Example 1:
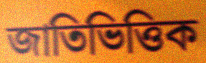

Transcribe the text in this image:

জাতিভিত্তিক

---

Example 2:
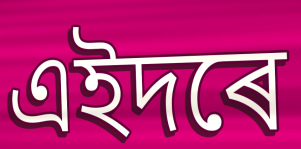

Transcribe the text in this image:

এইদৰে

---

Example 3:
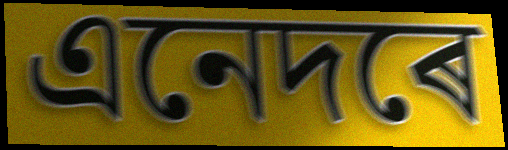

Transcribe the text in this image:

এনেদৰে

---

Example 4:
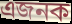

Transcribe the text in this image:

এজনক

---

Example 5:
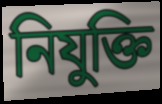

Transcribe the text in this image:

নিযুক্তি